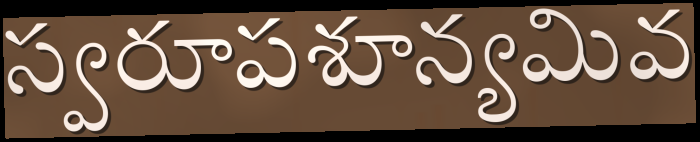
స్వరూపశూన్యమివ